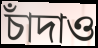
চাঁদাও